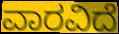
ವಾರವಿದೆ